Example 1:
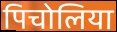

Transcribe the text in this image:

पिचोलिया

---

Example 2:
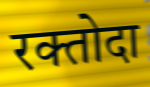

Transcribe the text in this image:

रक्तोदा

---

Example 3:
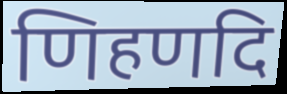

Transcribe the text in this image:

णिहणदि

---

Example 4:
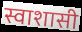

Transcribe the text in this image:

स्वाशासी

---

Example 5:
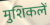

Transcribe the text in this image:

मुशिकलें